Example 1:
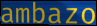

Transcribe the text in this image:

ambazo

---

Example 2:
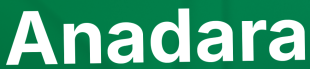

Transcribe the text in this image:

Anadara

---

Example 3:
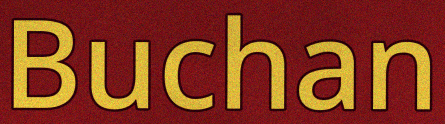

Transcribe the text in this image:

Buchan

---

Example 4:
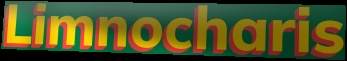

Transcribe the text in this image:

Limnocharis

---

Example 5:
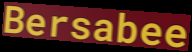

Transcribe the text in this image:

Bersabee